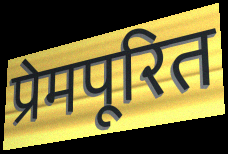
प्रेमपूरित